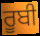
ਰੂਬੀ